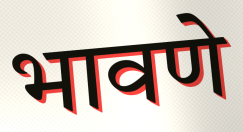
भावणे